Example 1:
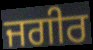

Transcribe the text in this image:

ਜਗੀਰ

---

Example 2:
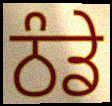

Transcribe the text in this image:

ਠੰਡੇ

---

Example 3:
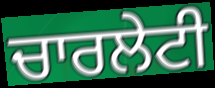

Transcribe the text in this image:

ਚਾਰਲੇਟੀ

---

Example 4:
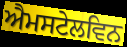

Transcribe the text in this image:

ਐਮਸਟੇਲਵਿਨ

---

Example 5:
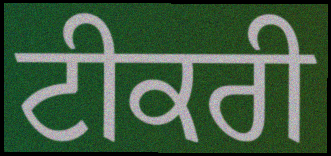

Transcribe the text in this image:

ਟੀਕਰੀ